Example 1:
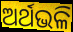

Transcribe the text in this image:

ଅର୍ଥଭଳି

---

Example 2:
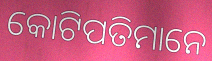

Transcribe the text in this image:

କୋଟିପତିମାନେ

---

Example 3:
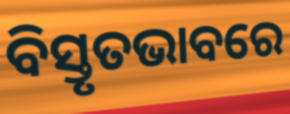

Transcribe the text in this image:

ବିସ୍ତୃତଭାବରେ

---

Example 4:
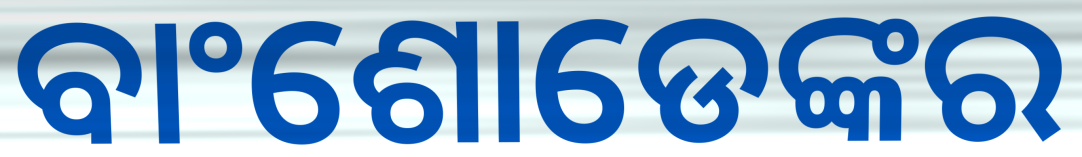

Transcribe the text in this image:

ବାଂଶୋଡେଙ୍କର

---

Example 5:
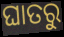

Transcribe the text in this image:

ଘାତରୁ